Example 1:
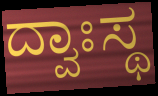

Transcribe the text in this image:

ದ್ವಾಃಸ್ಥ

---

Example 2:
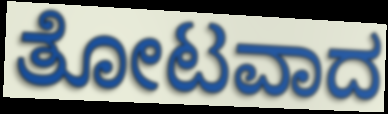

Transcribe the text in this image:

ತೋಟವಾದ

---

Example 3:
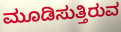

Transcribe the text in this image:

ಮೂಡಿಸುತ್ತಿರುವ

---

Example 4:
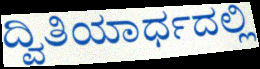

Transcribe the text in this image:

ದ್ವಿತಿಯಾರ್ಧದಲ್ಲಿ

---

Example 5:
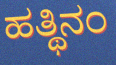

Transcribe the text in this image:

ಹತ್ಥಿನಂ